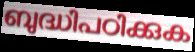
ബുദ്ധിപഠിക്കുക